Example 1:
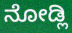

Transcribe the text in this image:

ನೋಡ್ಲಿ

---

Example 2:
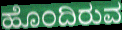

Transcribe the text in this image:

ಹೊಂದಿರುವ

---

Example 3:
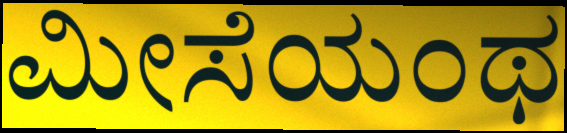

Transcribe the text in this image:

ಮೀಸೆಯಂಥ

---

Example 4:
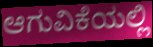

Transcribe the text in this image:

ಆಗುವಿಕೆಯಲ್ಲಿ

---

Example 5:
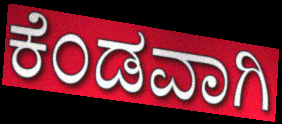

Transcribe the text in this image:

ಕೆಂಡವಾಗಿ